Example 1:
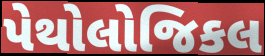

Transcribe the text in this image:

પેથોલોજિકલ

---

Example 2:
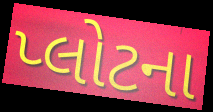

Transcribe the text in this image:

પ્લોટના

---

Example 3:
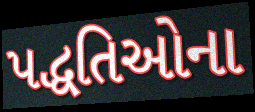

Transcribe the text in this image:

પદ્ધતિઓના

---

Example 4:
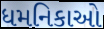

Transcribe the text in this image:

ધમનિકાઓ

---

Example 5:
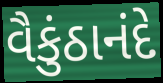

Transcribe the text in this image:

વૈકુંઠાનંદે